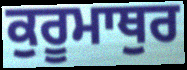
ਕੁਰੂਮਾਥੁਰ